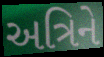
અત્રિને